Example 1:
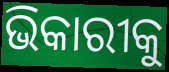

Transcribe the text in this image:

ଭିକାରୀକୁ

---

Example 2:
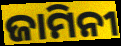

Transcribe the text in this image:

ଜାମିନୀ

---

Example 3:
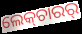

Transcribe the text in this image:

ଲେକ୍‍ଚାରର୍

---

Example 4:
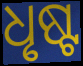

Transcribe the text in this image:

ଧୃଷ୍ଟ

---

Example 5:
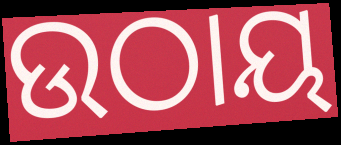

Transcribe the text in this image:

ଉଠାୟ